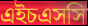
এইচএসসি